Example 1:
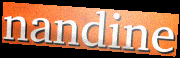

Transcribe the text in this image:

nandine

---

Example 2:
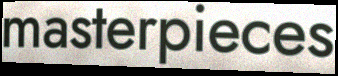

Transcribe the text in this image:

masterpieces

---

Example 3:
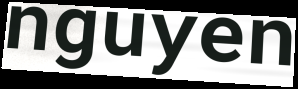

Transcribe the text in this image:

nguyen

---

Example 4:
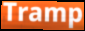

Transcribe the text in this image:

Tramp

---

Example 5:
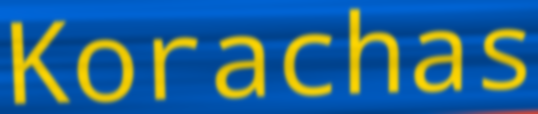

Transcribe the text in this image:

Korachas